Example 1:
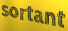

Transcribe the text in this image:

sortant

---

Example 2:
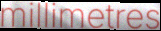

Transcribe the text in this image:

millimetres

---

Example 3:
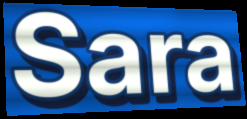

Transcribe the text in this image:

Sara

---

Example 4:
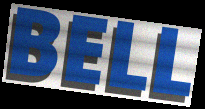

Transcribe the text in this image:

BELL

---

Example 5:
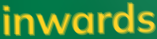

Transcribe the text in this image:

inwards